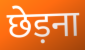
छेड़ना